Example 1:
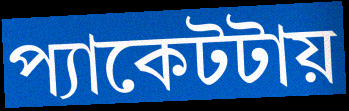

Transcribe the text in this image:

প্যাকেটটায়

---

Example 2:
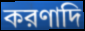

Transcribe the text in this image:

করণাদি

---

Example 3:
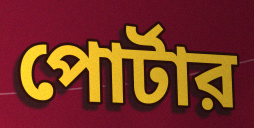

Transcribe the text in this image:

পোর্টার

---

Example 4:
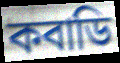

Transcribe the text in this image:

কবাডি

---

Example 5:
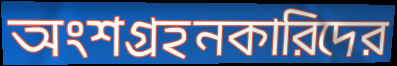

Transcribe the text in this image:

অংশগ্রহনকারিদের